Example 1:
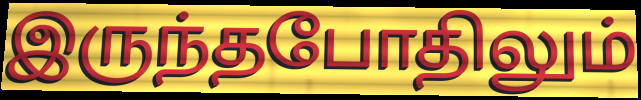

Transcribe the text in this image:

இருந்தபோதிலும்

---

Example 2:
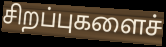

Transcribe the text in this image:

சிறப்புகளைச்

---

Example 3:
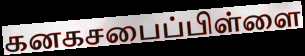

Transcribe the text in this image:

கனகசபைப்பிள்ளை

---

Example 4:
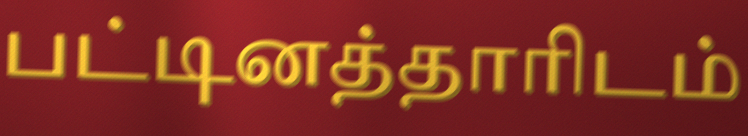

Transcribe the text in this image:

பட்டினத்தாரிடம்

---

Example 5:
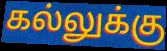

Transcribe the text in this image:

கல்லுக்கு